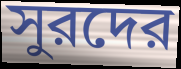
সুরদের